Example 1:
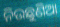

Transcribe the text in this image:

ନିଉଛୁଣିଆ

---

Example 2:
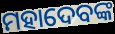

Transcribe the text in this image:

ମହାଦେବଙ୍କ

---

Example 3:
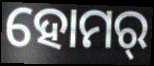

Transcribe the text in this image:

ହୋମର୍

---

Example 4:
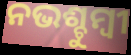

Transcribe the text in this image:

ନଭଶ୍ଚୁମ୍ବୀ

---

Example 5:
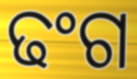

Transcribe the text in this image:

ଢଂଗ